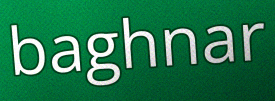
baghnar